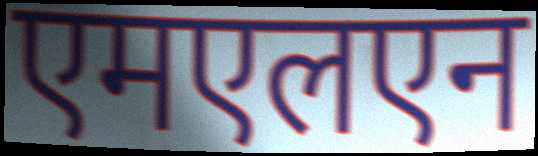
एमएलएन